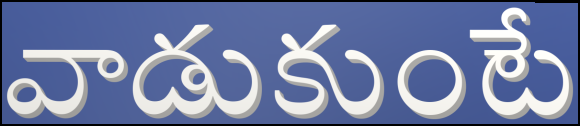
వాడుకుంటే